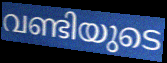
വണ്ടിയുടെ